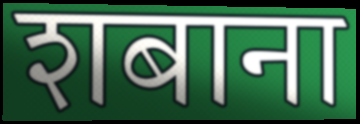
शबाना